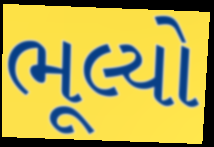
ભૂલ્યો